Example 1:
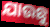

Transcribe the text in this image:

ଯାଉଛୁ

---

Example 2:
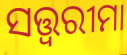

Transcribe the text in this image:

ସତ୍ତ୍ୱରୀମା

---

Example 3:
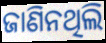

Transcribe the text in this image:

ଜାଣିନଥିଲି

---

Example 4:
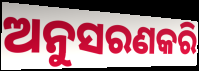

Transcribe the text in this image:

ଅନୁସରଣକରି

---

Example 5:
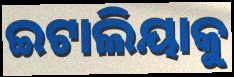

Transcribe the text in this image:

ଇଟାଲିୟାକୁ